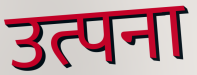
उत्पना